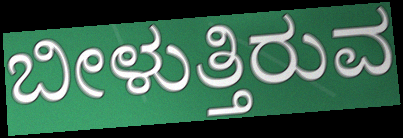
ಬೀಳುತ್ತಿರುವ